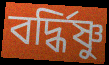
বর্দ্ধিষ্ণু